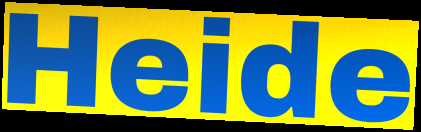
Heide